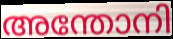
അന്തോനി